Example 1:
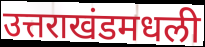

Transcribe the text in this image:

उत्तराखंडमधली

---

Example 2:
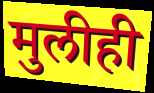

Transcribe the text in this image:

मुलीही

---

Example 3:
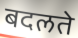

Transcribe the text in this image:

बदलते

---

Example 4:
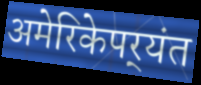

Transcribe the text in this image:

अमेरिकेपर्यंत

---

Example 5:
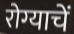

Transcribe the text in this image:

रोग्याचें